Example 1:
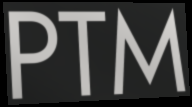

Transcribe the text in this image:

PTM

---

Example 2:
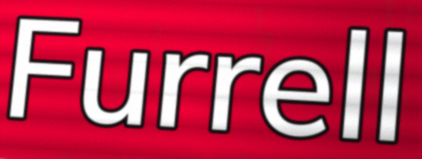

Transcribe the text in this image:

Furrell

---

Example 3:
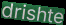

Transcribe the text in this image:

drishte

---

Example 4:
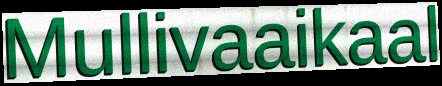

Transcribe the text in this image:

Mullivaaikaal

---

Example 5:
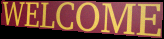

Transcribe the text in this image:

WELCOME